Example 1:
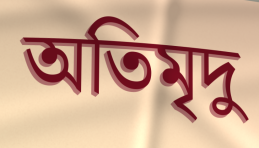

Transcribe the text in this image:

অতিমৃদু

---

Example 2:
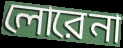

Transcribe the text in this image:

লোরেনা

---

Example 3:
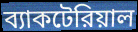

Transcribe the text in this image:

ব্যাকটেরিয়াল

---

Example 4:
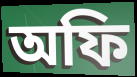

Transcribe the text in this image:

অফি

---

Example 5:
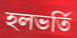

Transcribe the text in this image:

হলভর্তি